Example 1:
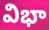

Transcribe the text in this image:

విభా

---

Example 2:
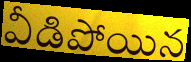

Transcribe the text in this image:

వీడిపోయిన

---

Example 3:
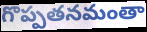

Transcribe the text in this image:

గొప్పతనమంతా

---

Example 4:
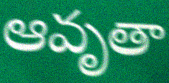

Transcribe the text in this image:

ఆవృతా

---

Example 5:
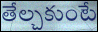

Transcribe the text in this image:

తేల్చకుంటే